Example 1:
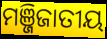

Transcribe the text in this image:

ମଞ୍ଜିଜାତୀୟ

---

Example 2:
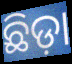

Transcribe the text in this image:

ଛିଡ଼ା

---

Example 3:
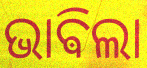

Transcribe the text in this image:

ଭାଵିଲା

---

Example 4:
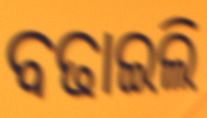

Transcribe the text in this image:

ବଢାଇଲି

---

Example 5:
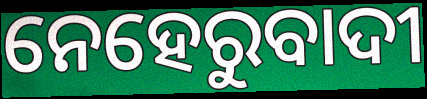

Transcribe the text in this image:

ନେହେରୁବାଦୀ